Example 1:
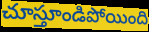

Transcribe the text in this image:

చూస్తూండిపోయింది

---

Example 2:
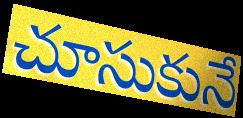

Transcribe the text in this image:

చూసుకునే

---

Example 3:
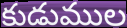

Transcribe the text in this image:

కుడుముల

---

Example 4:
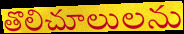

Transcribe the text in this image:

తొలిచూలులను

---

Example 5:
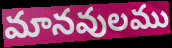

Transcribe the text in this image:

మానవులము